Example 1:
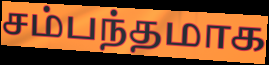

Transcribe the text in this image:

சம்பந்தமாக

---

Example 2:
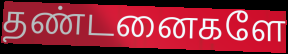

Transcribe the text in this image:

தண்டனைகளே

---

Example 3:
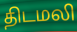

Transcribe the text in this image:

திடமலி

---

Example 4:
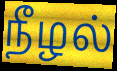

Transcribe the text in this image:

நீழல்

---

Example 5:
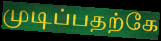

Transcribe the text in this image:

முடிப்பதற்கே